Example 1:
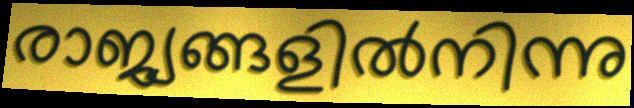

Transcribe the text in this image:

രാജ്യങ്ങളിൽനിന്നു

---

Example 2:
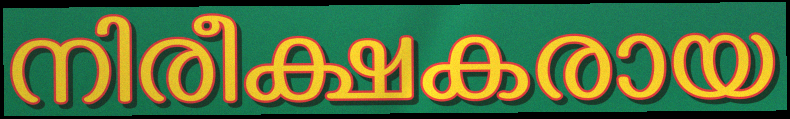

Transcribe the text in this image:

നിരീക്ഷകരായ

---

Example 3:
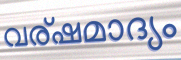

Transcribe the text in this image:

വര്ഷമാദ്യം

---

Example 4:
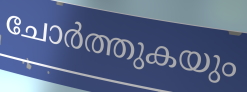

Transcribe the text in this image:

ചോർത്തുകയും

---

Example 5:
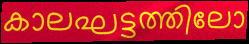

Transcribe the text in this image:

കാലഘട്ടത്തിലോ